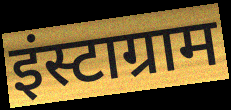
इंस्टाग्राम